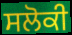
ਸਲੋਕੀ